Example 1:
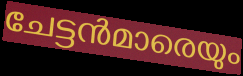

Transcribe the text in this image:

ചേട്ടൻമാരെയും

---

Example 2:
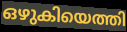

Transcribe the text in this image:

ഒഴുകിയെത്തി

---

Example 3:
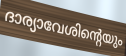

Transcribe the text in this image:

ദാര്യാവേശിന്റെയും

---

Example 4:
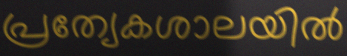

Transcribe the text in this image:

പ്രത്യേകശാലയിൽ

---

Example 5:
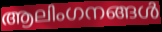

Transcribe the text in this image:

ആലിംഗനങ്ങൾ